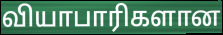
வியாபாரிகளான